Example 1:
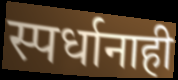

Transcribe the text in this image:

स्पर्धानाही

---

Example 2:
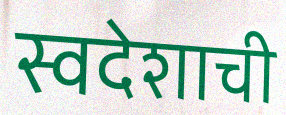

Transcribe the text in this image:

स्वदेशाची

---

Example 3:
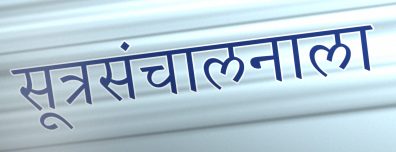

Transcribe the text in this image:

सूत्रसंचालनाला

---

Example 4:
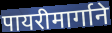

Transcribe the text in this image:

पायरीमार्गाने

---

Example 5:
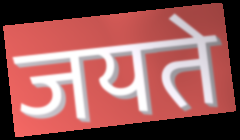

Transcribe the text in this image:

जयते